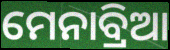
ମେନାବ୍ରିଆ